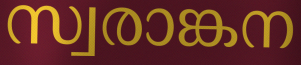
സ്വരാങ്കന